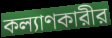
কল্যাণকারীর